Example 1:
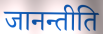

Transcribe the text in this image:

जानन्तीति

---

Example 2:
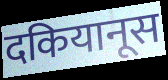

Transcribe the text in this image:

दकियानूस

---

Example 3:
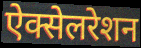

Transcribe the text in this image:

ऐक्सेलरेशन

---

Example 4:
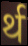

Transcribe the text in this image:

र्थ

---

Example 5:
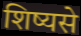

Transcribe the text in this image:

शिष्यसे